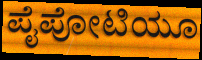
ಪೈಪೋಟಿಯೂ